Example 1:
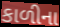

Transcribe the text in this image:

કાળીના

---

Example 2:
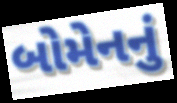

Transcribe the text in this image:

બોમેનનું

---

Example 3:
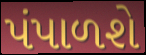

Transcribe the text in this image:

પંપાળશે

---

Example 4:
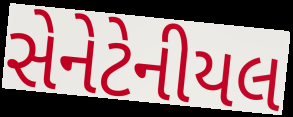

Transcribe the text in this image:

સેનેટેનીયલ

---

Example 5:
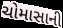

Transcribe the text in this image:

ચોમાસાની